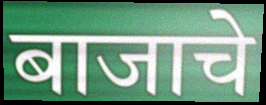
बाजाचे